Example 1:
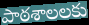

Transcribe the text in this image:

పాఠశాలలకు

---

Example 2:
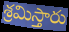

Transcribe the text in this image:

శ్రమిస్తారు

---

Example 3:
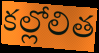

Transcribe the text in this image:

కల్లోలిత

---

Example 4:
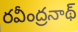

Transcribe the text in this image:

రవీంద్రనాథ్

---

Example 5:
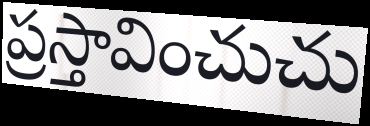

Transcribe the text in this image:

ప్రస్తావించుచు